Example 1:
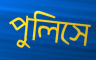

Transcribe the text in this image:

পুলিসে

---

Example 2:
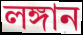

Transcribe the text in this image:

লঙ্গান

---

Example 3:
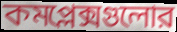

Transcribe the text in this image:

কমপ্লেক্সগুলোর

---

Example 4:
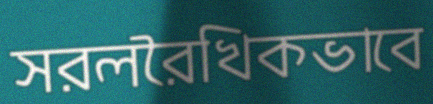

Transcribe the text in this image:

সরলরৈখিকভাবে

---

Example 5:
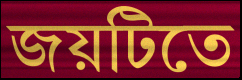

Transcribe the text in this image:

জয়টিতে